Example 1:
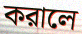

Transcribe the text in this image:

করালে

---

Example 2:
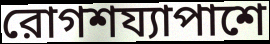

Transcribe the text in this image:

রোগশয্যাপাশে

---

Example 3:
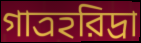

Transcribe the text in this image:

গাত্রহরিদ্রা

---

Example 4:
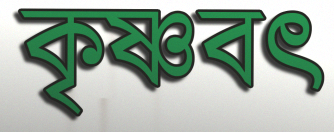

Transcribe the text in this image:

কৃষ্ণবৎ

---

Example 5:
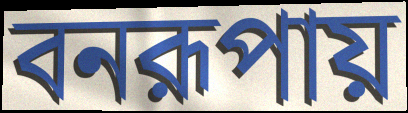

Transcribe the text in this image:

বনরূপায়